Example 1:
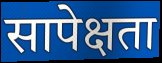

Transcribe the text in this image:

सापेक्षता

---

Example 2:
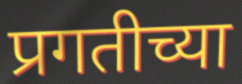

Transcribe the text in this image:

प्रगतीच्या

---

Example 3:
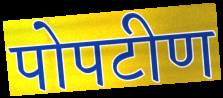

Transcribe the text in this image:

पोपटीण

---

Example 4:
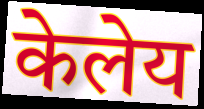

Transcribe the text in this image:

केलेय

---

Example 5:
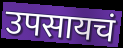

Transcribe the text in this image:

उपसायचं